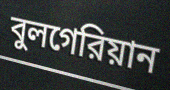
বুলগেরিয়ান